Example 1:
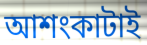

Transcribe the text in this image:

আশংকাটাই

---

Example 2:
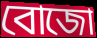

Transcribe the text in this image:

বোজো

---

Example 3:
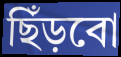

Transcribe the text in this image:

ছিঁড়বো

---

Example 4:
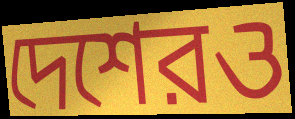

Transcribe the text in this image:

দেশেরও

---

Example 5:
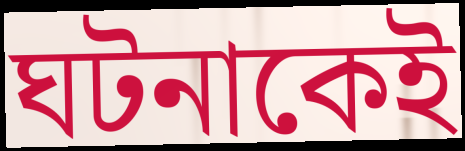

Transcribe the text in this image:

ঘটনাকেই